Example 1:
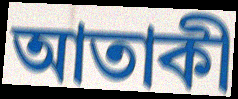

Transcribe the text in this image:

আতাকী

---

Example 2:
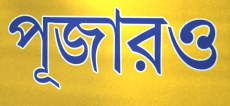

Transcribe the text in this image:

পূজারও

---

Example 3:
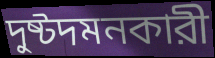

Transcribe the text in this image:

দুষ্টদমনকারী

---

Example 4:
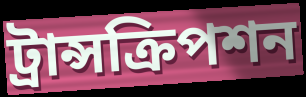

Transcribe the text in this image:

ট্রান্সক্রিপশন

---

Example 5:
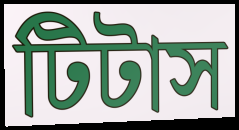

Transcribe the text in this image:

টিটাস